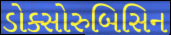
ડોક્સોરુબિસિન